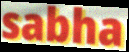
sabha